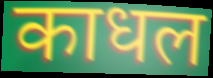
काधल